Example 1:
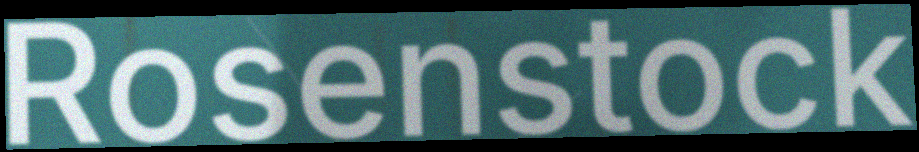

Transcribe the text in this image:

Rosenstock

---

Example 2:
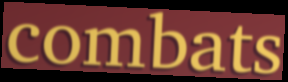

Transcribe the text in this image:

combats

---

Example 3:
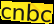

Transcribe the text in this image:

cnbc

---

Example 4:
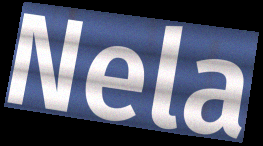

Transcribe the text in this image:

Nela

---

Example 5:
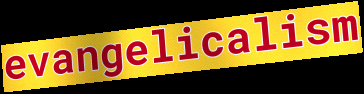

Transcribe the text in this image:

evangelicalism